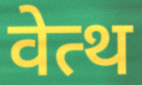
वेत्थ